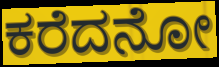
ಕರೆದನೋ